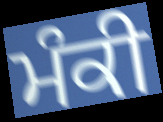
ਮੰਕੀ